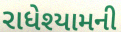
રાધેશ્યામની